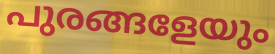
പുരങ്ങളേയും